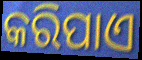
କରିପାଏ